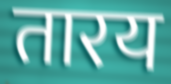
तारय